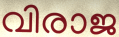
വിരാജ